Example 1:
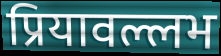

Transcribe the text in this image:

प्रियावल्लभ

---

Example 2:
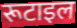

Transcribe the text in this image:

रूटाइल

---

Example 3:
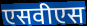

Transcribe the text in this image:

एसवीएस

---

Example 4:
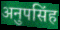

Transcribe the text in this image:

अनुपसिंह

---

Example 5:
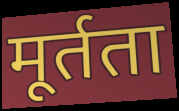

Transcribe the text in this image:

मूर्तता